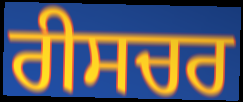
ਰੀਸਚਰ